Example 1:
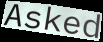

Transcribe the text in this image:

Asked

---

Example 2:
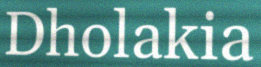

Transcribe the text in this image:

Dholakia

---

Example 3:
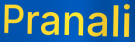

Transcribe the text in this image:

Pranali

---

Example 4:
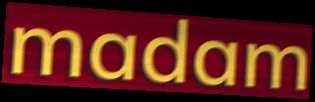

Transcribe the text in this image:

madam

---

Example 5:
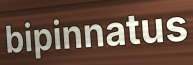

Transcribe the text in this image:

bipinnatus